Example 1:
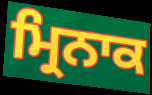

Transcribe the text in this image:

ਮ੍ਰਿਨਾਕ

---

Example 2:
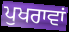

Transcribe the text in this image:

ਪੁਖਰਾਵਾਂ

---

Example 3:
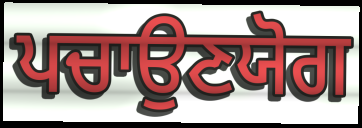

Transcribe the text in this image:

ਪਚਾਉਣਯੋਗ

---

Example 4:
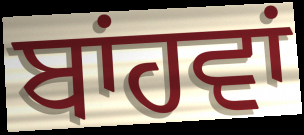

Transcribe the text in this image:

ਬਾਂਹਵਾਂ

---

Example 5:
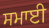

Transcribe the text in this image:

ਸਮਾਈ